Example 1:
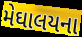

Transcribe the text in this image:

મેઘાલયના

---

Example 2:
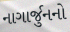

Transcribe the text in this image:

નાગાર્જુનનો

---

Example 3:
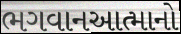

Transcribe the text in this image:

ભગવાનઆત્માનો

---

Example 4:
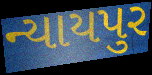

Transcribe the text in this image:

ન્યાયપુર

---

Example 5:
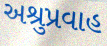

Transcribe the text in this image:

અશ્રુપ્રવાહ